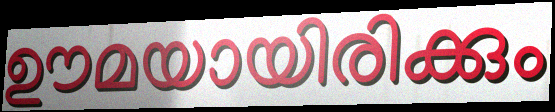
ഊമയായിരിക്കും